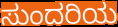
ಸುಂದರಿಯ